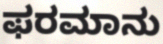
ಫರಮಾನು